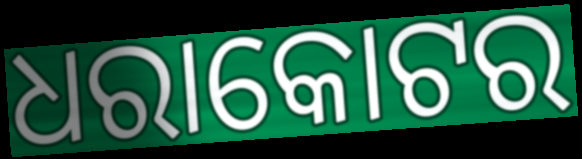
ଧରାକୋଟର